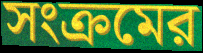
সংক্রমের